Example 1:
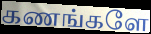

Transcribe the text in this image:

கணங்களே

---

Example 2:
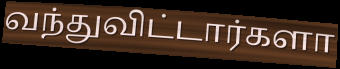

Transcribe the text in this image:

வந்துவிட்டார்களா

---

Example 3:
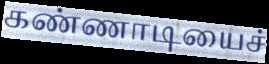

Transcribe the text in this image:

கண்ணாடியைச்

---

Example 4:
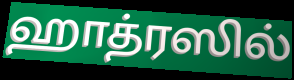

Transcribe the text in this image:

ஹாத்ரஸில்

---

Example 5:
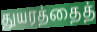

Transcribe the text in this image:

துயரத்தைத்